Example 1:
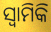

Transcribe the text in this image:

ସ୍ୱାମିକି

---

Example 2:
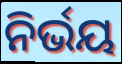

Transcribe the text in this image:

ନିର୍ଭୟ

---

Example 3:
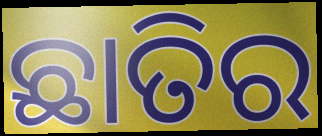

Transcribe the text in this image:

ଛାତିର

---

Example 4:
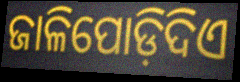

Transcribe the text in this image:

ଜାଳିପୋଡ଼ିଦିଏ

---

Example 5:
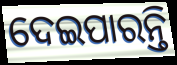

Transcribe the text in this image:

ଦେଇପାରନ୍ତି